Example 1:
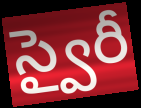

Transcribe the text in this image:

స్వైరీ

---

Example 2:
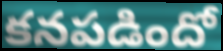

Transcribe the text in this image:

కనపడిందో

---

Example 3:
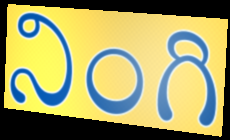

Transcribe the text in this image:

నింగి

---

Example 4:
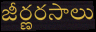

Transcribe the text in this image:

జీర్ణరసాలు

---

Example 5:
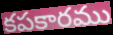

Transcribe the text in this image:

కపకారము